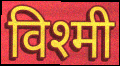
विश्मी